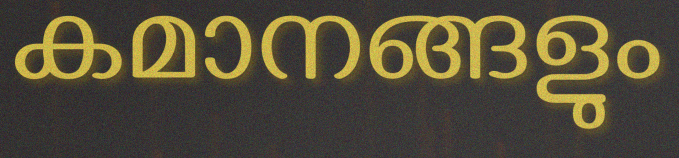
കമാനങ്ങളും